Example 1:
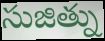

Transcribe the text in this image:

సుజిత్ను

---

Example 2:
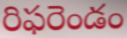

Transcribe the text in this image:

రిఫరెండం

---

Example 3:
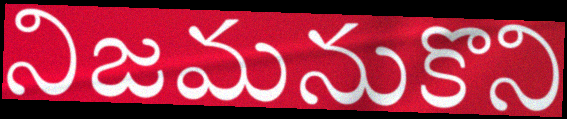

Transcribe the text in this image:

నిజమనుకొని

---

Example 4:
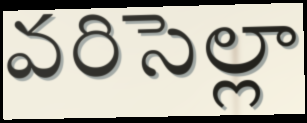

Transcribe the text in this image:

వరిసెల్లా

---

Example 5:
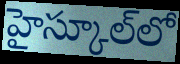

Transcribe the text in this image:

హైస్కూల్‌లో